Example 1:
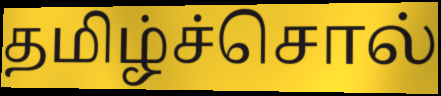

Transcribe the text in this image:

தமிழ்ச்சொல்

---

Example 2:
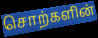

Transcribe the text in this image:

சொற்களின்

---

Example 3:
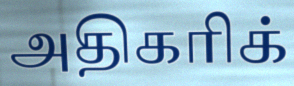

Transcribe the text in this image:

அதிகரிக்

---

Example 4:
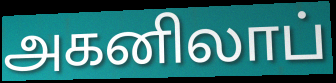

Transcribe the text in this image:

அகனிலாப்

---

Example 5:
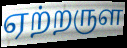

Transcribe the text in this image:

ஏற்றருள